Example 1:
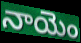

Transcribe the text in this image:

నాయెం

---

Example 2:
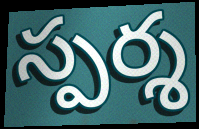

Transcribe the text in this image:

స్పర్శ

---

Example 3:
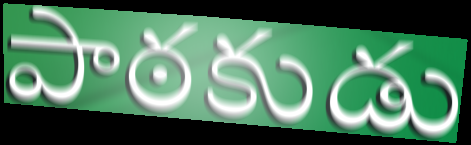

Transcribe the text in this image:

పాఠకుడు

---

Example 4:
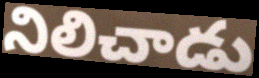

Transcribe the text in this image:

నిలిచాడు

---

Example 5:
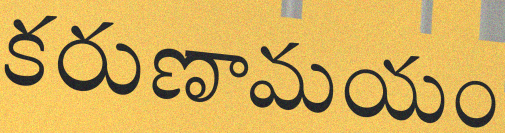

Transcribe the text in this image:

కరుణామయం